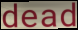
dead